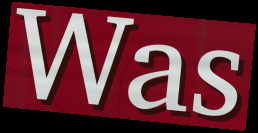
Was